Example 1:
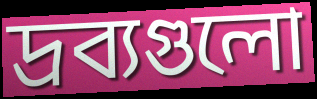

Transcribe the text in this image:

দ্রব্যগুলো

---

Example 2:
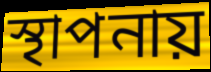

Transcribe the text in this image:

স্থাপনায়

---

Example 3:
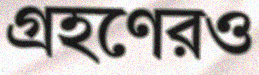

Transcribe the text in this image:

গ্রহণেরও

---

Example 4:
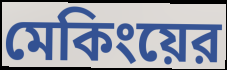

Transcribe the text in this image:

মেকিংয়ের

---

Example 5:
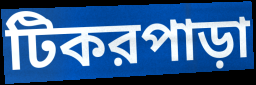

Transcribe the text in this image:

টিকরপাড়া